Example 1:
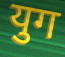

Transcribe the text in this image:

युग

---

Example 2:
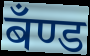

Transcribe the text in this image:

बँण्ड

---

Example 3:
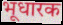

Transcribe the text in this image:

भूधारक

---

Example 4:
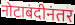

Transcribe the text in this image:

नोटाबंदीनंतर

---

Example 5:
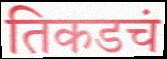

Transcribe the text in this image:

तिकडचं